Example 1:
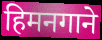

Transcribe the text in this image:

हिमनगाने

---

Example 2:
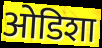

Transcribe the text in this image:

ओडिशा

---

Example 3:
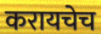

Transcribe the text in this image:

करायचेच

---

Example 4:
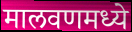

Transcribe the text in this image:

मालवणमध्ये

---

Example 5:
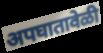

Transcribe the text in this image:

अपघातावेळी